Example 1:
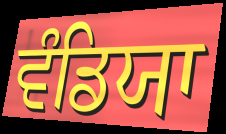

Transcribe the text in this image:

ਵੰਡਿਯਾ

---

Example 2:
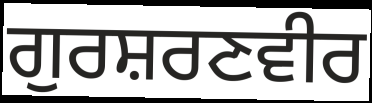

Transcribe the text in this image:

ਗੁਰਸ਼ਰਣਵੀਰ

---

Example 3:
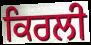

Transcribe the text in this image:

ਕਿਰਲੀ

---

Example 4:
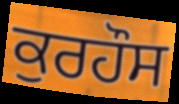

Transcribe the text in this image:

ਕੁਰਹੌਸ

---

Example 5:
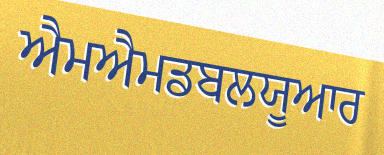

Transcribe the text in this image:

ਐਮਐਮਡਬਲਯੂਆਰ